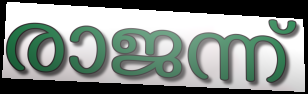
രാജന്ന്